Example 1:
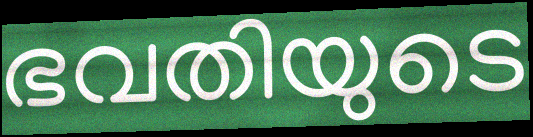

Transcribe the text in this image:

ഭവതിയുടെ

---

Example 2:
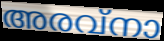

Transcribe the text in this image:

അരവ്നാ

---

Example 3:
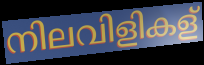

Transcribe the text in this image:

നിലവിളികള്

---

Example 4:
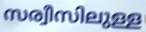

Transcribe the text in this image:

സര്വീസിലുള്ള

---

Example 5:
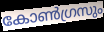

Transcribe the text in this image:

കോൺഗ്രസും